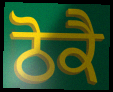
ਠੋਕੈ